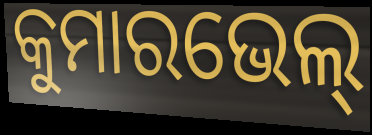
କୁମାରଭେଲ୍